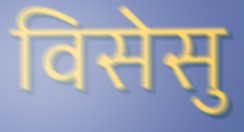
विसेसु